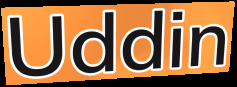
Uddin